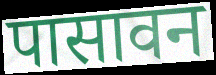
पासावन